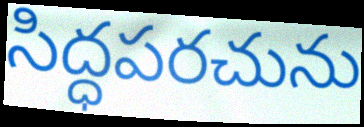
సిద్ధపరచును